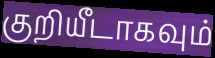
குறியீடாகவும்